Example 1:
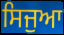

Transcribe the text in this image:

ਸਿਜੁਆ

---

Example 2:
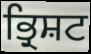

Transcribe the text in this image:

ਭ੍ਰਿਸ਼ਟ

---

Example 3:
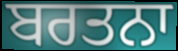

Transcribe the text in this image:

ਬਰਤਨਾ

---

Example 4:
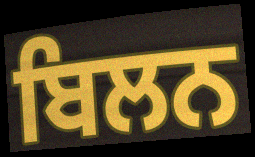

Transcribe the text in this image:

ਬਿਲਨ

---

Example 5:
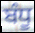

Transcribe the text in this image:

ਬੰਧੂ